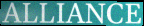
ALLIANCE